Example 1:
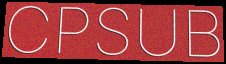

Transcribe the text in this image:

CPSUB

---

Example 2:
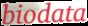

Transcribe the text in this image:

biodata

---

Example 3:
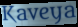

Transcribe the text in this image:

Kaveya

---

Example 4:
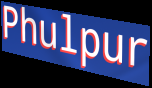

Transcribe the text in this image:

Phulpur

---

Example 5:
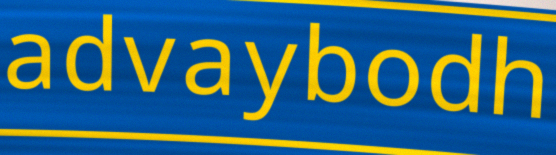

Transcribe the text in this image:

advaybodh